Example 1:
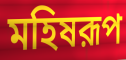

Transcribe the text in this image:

মহিষরূপ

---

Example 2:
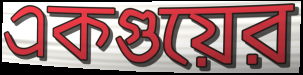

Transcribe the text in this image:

একগুয়ের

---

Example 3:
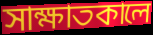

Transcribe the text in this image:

সাক্ষাতকালে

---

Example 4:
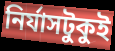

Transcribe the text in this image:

নির্যাসটুকুই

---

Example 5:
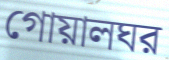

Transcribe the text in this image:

গোয়ালঘর